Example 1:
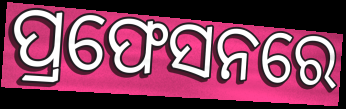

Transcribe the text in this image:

ପ୍ରଫେସନରେ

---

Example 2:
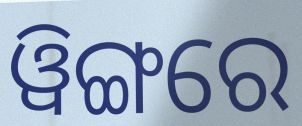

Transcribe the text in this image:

ୱିଙ୍ଗରେ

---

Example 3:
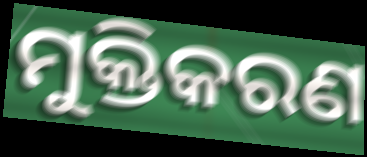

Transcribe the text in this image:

ମୁକ୍ତିକରଣ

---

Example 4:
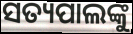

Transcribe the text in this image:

ସତ୍ୟପାଲଙ୍କୁ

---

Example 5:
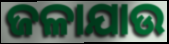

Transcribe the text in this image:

ଜଳାଯାଉ